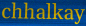
chhalkay